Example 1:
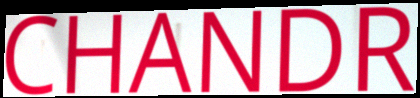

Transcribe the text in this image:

CHANDR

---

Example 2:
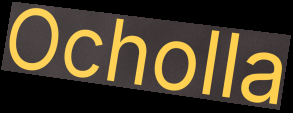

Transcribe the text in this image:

Ocholla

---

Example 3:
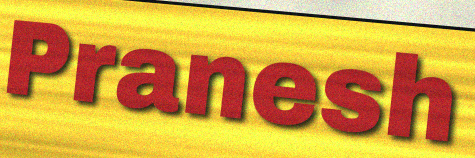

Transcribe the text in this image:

Pranesh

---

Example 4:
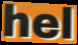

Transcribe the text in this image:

hel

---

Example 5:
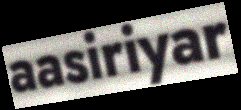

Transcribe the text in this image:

aasiriyar